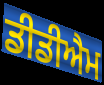
ਡੀਡੀਐਮ